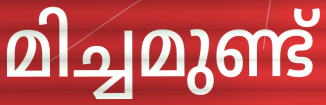
മിച്ചമുണ്ട്